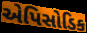
એપિસોડિક